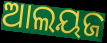
ଆଲୟଜ